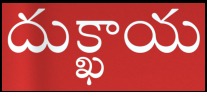
దుక్ఖాయ